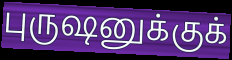
புருஷனுக்குக்